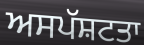
ਅਸਪੱਸ਼ਟਤਾ